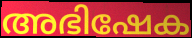
അഭിഷേക